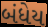
બંધેય